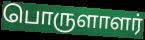
பொருளாளர்